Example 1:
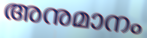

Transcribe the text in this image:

അനുമാനം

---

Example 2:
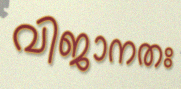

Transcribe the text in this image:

വിജാനതഃ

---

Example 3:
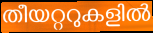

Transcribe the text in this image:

തീയറ്ററുകളിൽ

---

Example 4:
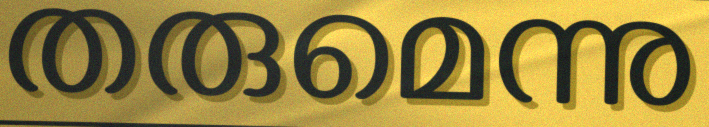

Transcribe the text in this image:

തരുമെന്നു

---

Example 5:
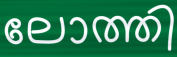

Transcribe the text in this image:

ലോത്തി